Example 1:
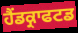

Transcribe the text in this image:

ਹੈਂਡਕ੍ਰਾਫਟਡ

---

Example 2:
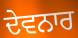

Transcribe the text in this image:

ਦੇਵਨਾਰ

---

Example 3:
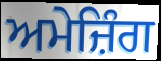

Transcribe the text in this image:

ਅਮੇਜ਼ਿੰਗ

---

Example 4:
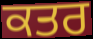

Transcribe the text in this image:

ਕਤਰ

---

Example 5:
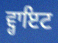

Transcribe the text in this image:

ਵ੍ਹਾਇਟ